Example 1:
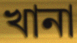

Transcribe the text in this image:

খানা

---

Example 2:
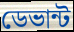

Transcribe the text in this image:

ডেভান্ট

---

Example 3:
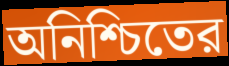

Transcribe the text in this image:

অনিশ্চিতের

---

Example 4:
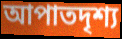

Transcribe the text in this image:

আপাতদৃশ্য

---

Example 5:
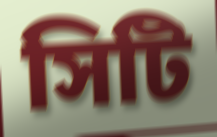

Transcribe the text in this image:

সিটি